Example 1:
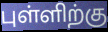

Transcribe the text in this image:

புள்ளிற்கு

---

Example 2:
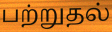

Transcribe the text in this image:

பற்றுதல்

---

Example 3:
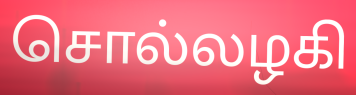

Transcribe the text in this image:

சொல்லழகி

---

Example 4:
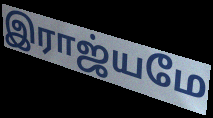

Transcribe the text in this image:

இராஜ்யமே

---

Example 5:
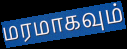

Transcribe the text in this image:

மரமாகவும்